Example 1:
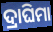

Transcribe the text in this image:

ଦ୍ରାଘିମା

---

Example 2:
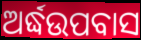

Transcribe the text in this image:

ଅର୍ଦ୍ଧଉପବାସ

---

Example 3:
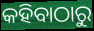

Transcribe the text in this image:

କହିବାଠାରୁ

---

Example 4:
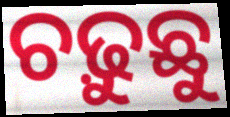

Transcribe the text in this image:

ଚଢ଼ୁଛୁ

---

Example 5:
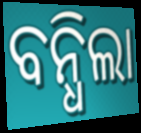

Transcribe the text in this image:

ବନ୍ଧିଲା